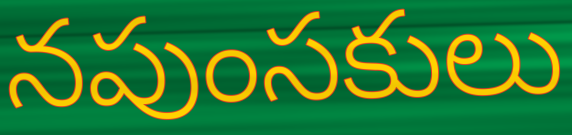
నపుంసకులు